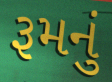
રૂમનું